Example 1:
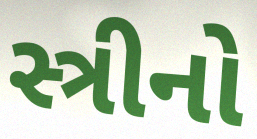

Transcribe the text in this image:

સ્ત્રીનો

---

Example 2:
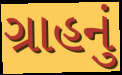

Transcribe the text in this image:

ગ્રાહનું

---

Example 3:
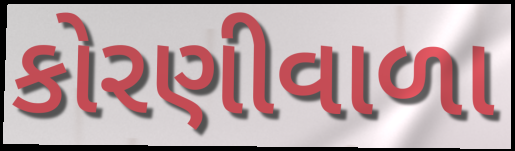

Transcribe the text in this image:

કોરણીવાળા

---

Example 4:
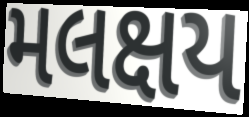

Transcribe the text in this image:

મલક્ષય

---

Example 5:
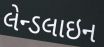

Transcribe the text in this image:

લેન્ડલાઇન